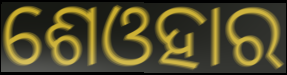
ଶେଓହାର